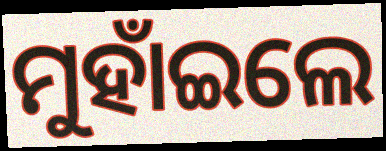
ମୁହାଁଇଲେ